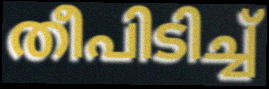
തീപിടിച്ച്